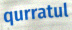
qurratul